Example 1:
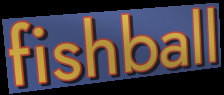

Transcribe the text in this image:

fishball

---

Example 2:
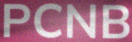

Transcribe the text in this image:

PCNB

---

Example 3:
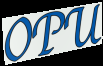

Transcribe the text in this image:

OPU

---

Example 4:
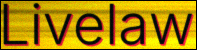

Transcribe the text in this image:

Livelaw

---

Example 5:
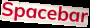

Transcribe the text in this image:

Spacebar